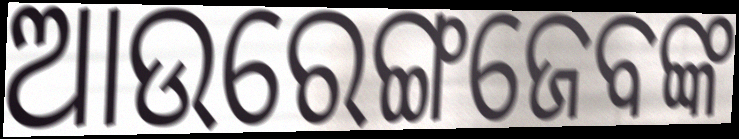
ଆଉରେଙ୍ଗଜେବଙ୍କ